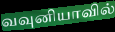
வவுனியாவில்